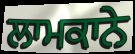
ਲਾਮਕਾਨੇ